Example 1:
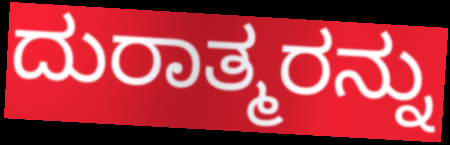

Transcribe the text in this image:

ದುರಾತ್ಮರನ್ನು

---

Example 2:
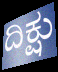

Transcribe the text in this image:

ದಿಕ್ಷು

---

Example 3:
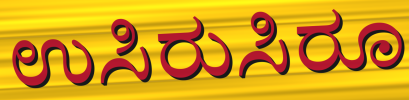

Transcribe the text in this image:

ಉಸಿರುಸಿರೂ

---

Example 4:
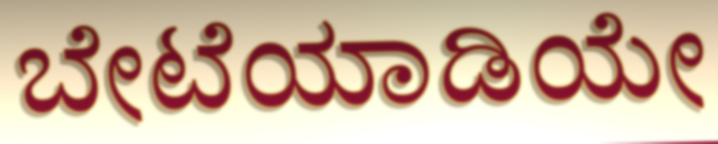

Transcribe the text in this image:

ಬೇಟೆಯಾಡಿಯೇ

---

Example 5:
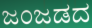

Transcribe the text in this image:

ಜಂಜಡದ